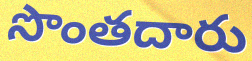
సొంతదారు